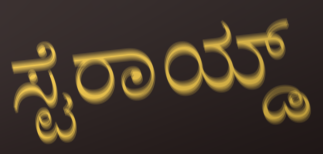
ಸ್ಟೆರಾಯ್ಡ್